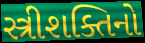
સ્ત્રીશક્તિનો